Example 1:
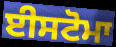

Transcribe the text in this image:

ਈਸਟੋਮਾ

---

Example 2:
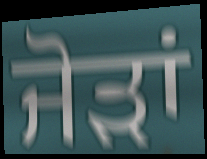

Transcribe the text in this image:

ਜੋਡ਼ਾਂ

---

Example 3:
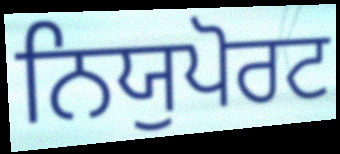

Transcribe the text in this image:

ਨਿਯੁਪੋਰਟ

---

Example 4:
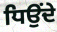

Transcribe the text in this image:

ਧਿਉਂਦੇ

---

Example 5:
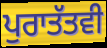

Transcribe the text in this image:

ਪੁਰਾਤੱਤਵੀ